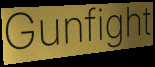
Gunfight